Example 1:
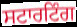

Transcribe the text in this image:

ਸਟਾਰਟਿੰਗ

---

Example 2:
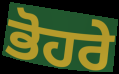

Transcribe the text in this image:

ਭੋਹਰੇ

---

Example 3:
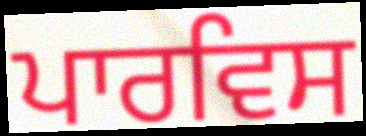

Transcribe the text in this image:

ਪਾਰਵਿਸ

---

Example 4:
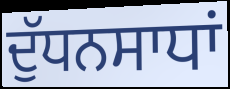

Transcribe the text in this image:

ਦੁੱਧਨਸਾਧਾਂ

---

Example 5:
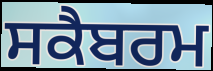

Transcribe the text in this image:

ਸਕੈਬਰਮ